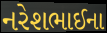
નરેશભાઈના